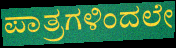
ಪಾತ್ರಗಳಿಂದಲೇ